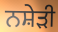
ਨਸ਼ੇੜੀ